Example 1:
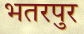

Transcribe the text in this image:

भतरपुर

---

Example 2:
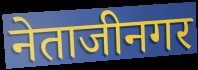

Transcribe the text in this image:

नेताजीनगर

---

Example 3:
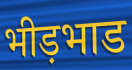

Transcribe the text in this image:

भीड़भाड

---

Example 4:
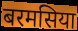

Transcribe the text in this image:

बरमसिया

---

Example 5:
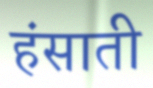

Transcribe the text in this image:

हंसाती